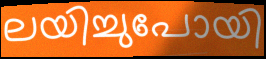
ലയിച്ചുപോയി